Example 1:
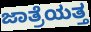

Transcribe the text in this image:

ಜಾತ್ರೆಯತ್ತ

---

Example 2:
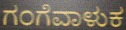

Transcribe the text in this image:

ಗಂಗೆವಾಳುಕ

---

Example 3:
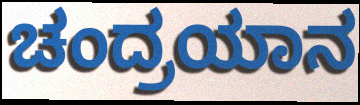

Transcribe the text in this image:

ಚಂದ್ರಯಾನ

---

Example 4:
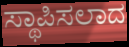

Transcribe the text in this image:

ಸ್ಥಾಪಿಸಲಾದ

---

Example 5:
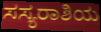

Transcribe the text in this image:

ಸಸ್ಯರಾಶಿಯ